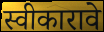
स्वीकारावे